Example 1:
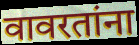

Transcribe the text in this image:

वावरतांना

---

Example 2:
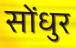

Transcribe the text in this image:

सोंधुर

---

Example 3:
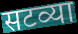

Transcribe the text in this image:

सटव्या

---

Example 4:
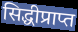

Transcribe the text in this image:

सिद्धीप्राप्त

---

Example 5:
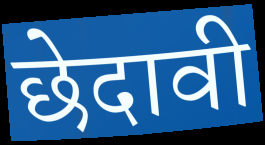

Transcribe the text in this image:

छेदावी